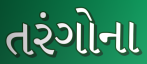
તરંગોના